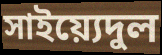
সাইয়্যেদুল